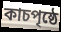
কাচপৃষ্ঠে